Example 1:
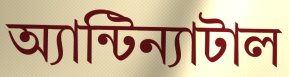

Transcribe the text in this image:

অ্যান্টিন্যাটাল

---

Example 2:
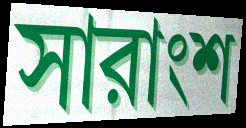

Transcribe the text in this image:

সারাংশ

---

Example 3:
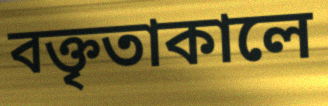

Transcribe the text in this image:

বক্তৃতাকালে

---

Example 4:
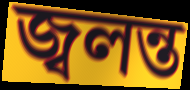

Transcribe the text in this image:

জ্বলন্ত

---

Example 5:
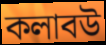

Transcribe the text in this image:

কলাবউ